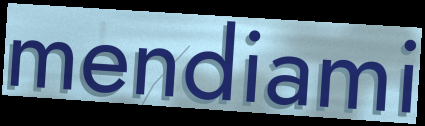
mendiami